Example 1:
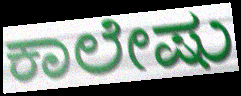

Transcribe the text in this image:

ಕಾಲೇಷು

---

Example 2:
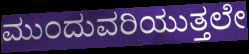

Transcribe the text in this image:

ಮುಂದುವರಿಯುತ್ತಲೇ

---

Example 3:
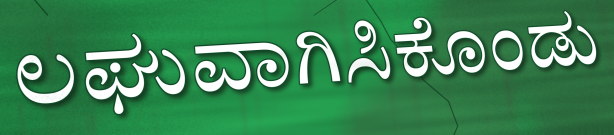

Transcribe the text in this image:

ಲಘುವಾಗಿಸಿಕೊಂಡು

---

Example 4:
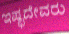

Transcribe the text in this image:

ಇಷ್ಟದೇವರು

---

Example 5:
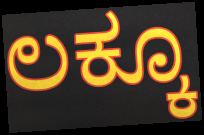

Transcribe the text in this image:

ಲಕ್ಕೂ